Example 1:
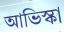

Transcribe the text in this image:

আভিস্কা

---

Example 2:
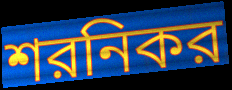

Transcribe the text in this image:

শরনিকর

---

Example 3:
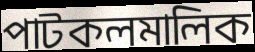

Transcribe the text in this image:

পাটকলমালিক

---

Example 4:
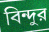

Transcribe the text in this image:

বিন্দুর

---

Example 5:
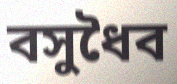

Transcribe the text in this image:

বসুধৈব